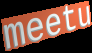
meetu